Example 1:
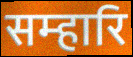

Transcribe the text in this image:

सम्हारि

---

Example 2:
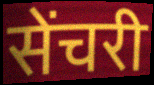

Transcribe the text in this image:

सेंचरी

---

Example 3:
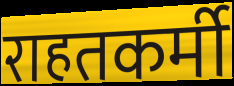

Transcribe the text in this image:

राहतकर्मी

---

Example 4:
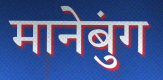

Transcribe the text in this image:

मानेबुंग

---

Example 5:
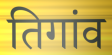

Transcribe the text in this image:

तिगांव